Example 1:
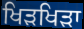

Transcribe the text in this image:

ਖਿੜਖਿੜਾ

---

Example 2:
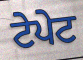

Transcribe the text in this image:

ਟੇਪੇਟ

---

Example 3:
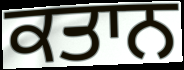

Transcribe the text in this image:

ਕਤਾਨ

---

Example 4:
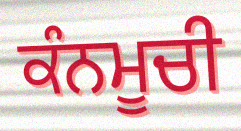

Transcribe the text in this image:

ਕੰਨਮੂਚੀ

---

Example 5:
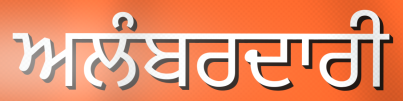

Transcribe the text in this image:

ਅਲੰਬਰਦਾਰੀ